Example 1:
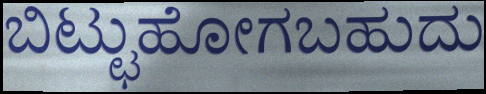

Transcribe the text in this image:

ಬಿಟ್ಟುಹೋಗಬಹುದು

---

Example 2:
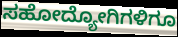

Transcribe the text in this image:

ಸಹೋದ್ಯೋಗಿಗಳಿಗೂ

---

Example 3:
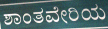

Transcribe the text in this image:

ಶಾಂತವೇರಿಯ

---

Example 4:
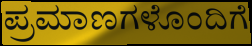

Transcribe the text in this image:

ಪ್ರಮಾಣಗಳೊಂದಿಗೆ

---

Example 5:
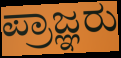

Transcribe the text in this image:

ಪ್ರಾಜ್ಞರು